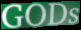
GODs